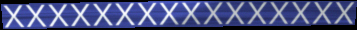
xxxxxxxxxxxxxxxx